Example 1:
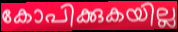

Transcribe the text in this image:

കോപിക്കുകയില്ല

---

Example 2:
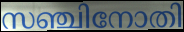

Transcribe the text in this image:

സഞ്ചിനോതി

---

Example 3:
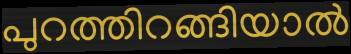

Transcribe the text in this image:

പുറത്തിറങ്ങിയാൽ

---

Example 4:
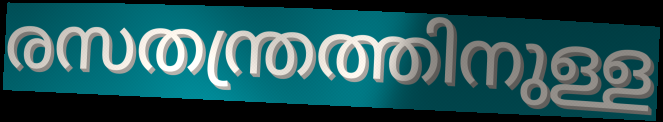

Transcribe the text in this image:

രസതന്ത്രത്തിനുള്ള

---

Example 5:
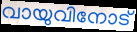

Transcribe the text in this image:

വായുവിനോട്